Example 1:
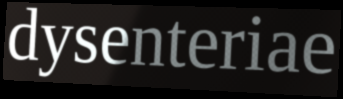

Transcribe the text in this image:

dysenteriae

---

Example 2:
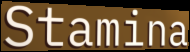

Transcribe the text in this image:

Stamina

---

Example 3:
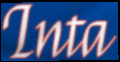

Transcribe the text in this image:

Inta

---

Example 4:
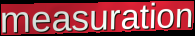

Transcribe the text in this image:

measuration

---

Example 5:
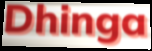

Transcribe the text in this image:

Dhinga